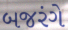
બજરંગે